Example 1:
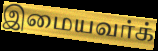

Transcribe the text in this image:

இமையவர்க்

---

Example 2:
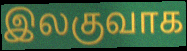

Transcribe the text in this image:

இலகுவாக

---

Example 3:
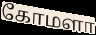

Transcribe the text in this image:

கோமளா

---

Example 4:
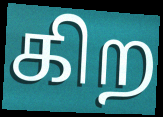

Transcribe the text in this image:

கிற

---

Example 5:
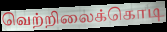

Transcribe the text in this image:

வெற்றிலைக்கொடி